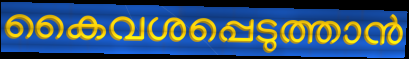
കൈവശപ്പെടുത്താൻ